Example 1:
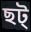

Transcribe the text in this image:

ছট্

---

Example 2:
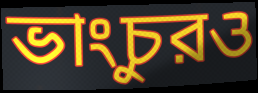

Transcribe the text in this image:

ভাংচুরও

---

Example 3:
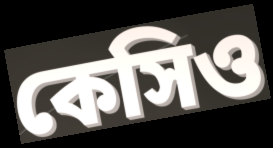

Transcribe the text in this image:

কেসিও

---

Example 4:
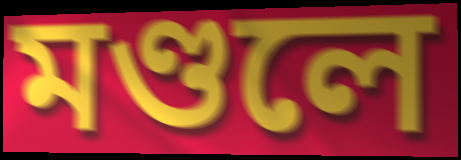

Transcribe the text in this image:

মণ্ডলে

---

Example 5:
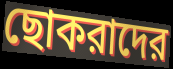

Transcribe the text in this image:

ছোকরাদের